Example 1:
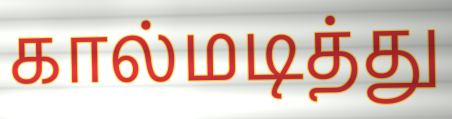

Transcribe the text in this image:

கால்மடித்து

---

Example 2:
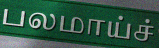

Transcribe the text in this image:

பலமாய்ச்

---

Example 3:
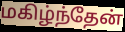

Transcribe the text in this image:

மகிழ்ந்தேன்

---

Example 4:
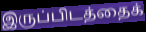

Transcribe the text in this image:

இருப்பிடத்தைக்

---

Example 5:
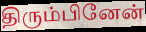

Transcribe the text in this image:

திரும்பினேன்